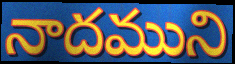
నాదముని